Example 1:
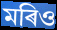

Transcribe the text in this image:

মৰিও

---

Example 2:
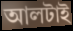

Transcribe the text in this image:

আলটাই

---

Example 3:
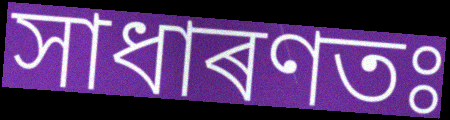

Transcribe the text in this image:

সাধাৰণতঃ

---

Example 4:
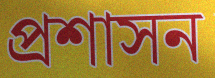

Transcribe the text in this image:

প্ৰশাসন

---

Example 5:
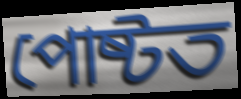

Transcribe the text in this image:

পোষ্টত